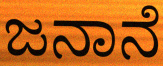
ಜನಾನೆ